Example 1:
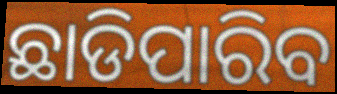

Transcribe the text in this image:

ଛାଡିପାରିବ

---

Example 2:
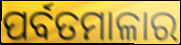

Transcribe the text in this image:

ପର୍ବତମାଳାର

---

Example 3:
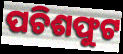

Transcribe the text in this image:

ପଚିଶଫୁଟ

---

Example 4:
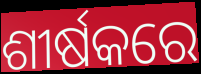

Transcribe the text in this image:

ଶୀର୍ଷକରେ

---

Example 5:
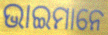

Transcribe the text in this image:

ଭାଇମାନେ